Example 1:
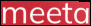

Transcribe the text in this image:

meeta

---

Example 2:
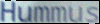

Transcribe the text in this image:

Hummus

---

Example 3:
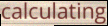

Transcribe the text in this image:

calculating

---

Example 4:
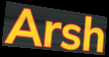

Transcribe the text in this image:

Arsh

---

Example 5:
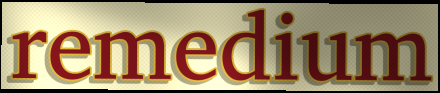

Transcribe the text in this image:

remedium